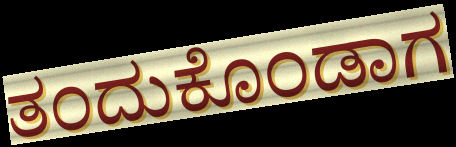
ತಂದುಕೊಂಡಾಗ